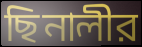
ছিনালীর